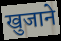
खुजाने